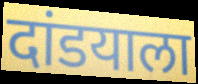
दांडयाला